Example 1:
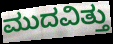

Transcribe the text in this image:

ಮುದವಿತ್ತು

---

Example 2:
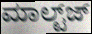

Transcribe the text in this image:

ಮಾಲ್ಟ್‌ಜ್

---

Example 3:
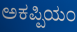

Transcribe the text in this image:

ಅಕಪ್ಪಿಯಂ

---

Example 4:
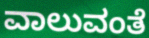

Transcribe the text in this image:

ವಾಲುವಂತೆ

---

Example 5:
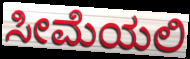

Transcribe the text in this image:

ಸೀಮೆಯಲಿ